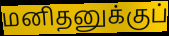
மனிதனுக்குப்